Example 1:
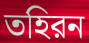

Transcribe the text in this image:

তহিরন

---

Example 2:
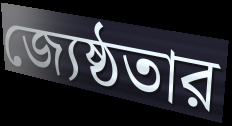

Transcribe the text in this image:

জ্যেষ্ঠতার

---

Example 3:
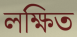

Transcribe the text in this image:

লক্ষিত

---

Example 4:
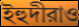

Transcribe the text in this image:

ইহুদীরাও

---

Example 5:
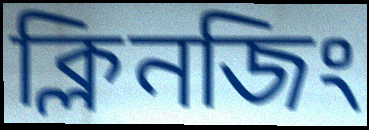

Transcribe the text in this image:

ক্লিনজিং